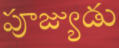
పూజ్యుడు